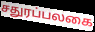
சதுரப்பலகை